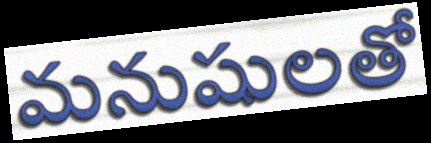
మనుషులతో